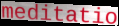
meditatio